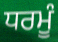
ਧਰਮੂੰ